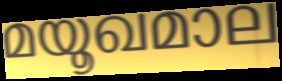
മയൂഖമാല